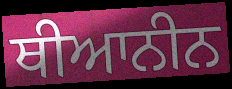
ਥੀਆਨੀਨ